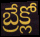
బ్రేక్లో